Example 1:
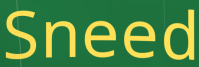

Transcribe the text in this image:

Sneed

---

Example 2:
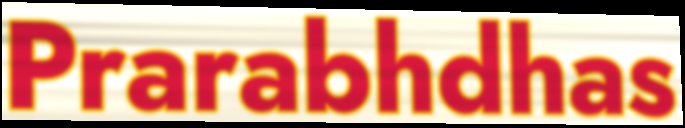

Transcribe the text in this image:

Prarabhdhas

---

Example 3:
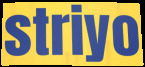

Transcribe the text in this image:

striyo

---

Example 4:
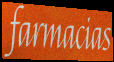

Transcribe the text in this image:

farmacias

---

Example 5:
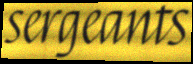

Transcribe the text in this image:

sergeants